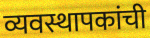
व्यवस्थापकांची